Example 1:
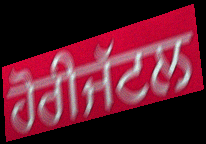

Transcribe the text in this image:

ਹੋਰੀਜੱਟਲ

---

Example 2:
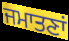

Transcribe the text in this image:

ਜਮਾਤਣਾਂ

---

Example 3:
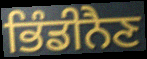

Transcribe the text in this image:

ਭਿੰਡੀਨੈਣ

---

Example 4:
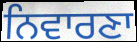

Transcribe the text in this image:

ਨਿਵਾਰਣਾ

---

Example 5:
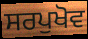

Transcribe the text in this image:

ਸਰਪੁਖੋਵ